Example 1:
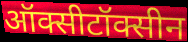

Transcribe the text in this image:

ऑक्सीटॉक्सीन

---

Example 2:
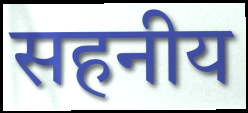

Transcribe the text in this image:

सहनीय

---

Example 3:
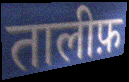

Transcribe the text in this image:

तालीफ़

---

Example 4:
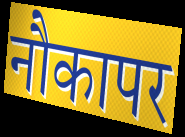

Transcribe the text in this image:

नौकापर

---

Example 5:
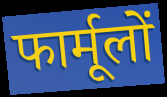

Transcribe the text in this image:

फार्मूलों